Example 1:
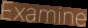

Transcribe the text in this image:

Examine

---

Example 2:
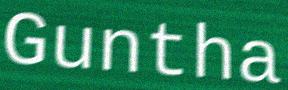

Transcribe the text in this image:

Guntha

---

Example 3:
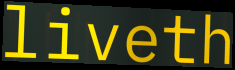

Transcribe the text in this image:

liveth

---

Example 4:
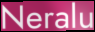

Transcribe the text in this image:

Neralu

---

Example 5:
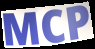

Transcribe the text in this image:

MCP